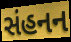
સંહનન